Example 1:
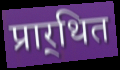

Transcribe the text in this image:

प्रार्थित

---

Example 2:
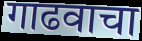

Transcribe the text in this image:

गाढवाचा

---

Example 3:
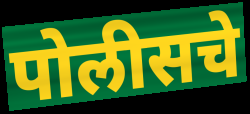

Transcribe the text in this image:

पोलीसचे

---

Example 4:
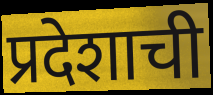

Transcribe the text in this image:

प्रदेशाची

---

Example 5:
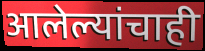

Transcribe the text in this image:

आलेल्यांचाही